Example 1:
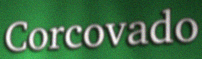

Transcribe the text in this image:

Corcovado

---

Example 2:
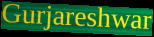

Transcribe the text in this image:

Gurjareshwar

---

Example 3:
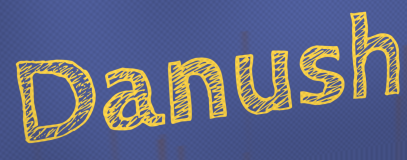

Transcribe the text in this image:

Danush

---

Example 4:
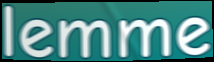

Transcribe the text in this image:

lemme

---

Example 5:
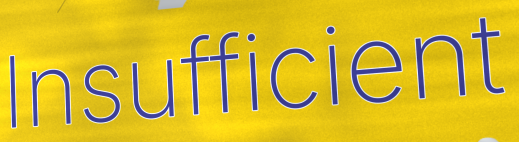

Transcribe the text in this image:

Insufficient